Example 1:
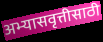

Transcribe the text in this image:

अभ्यासवृत्तीसाठी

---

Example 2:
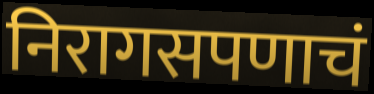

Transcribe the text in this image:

निरागसपणाचं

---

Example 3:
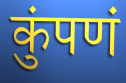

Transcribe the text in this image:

कुंपणं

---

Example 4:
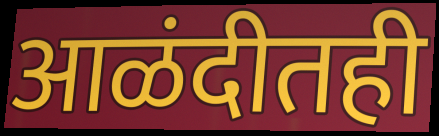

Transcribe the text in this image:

आळंदीतही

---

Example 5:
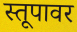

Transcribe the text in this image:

स्तूपावर